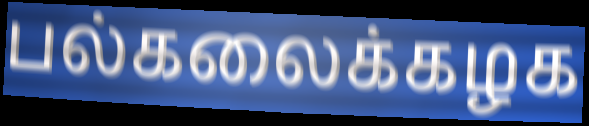
பல்கலைக்கழக